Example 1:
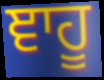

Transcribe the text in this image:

ਞਾਹੂ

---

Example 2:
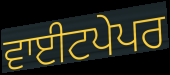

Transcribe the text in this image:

ਵਾਈਟਪੇਪਰ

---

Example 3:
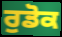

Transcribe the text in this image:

ਰੁਡੋਕ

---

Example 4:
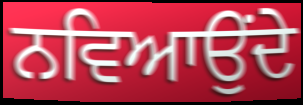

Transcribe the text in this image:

ਨਵਿਆਉਂਦੇ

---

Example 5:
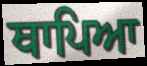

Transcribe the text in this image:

ਥਾਪਿਆ